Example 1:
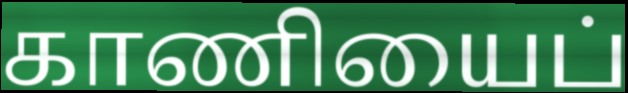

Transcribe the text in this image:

காணியைப்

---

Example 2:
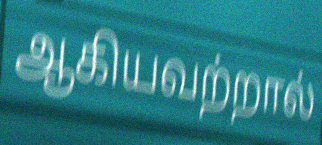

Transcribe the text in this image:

ஆகியவற்றால்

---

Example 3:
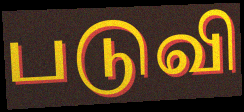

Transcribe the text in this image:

படுவி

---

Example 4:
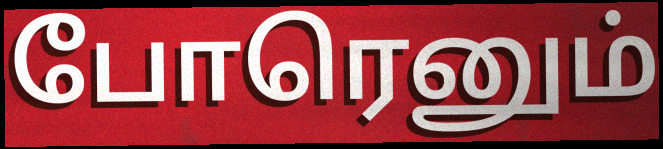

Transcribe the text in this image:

போரெனும்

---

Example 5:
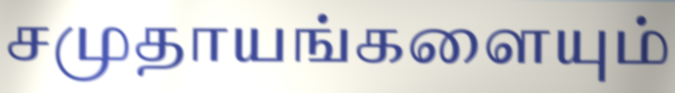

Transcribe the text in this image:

சமுதாயங்களையும்